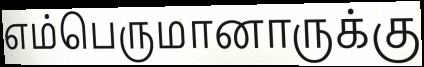
எம்பெருமானாருக்கு